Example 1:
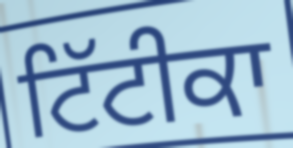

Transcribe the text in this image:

ਟਿੱਟੀਕਾ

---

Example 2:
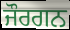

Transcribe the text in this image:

ਜੌਰਗਨ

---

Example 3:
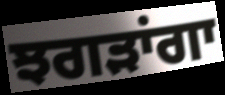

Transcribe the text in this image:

ਝਗੜਾਂਗਾ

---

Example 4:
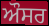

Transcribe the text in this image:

ਔਸਰ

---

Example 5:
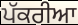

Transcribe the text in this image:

ਪੱਕਰੀਆ